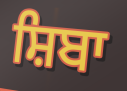
ਸ਼ਿਬਾ